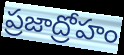
ప్రజాద్రోహం